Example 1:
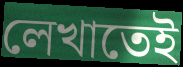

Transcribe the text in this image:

লেখাতেই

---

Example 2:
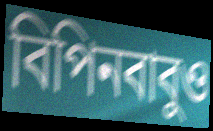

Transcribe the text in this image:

বিপিনবাবুও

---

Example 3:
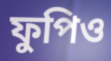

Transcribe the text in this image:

ফুপিও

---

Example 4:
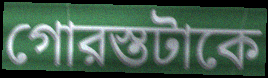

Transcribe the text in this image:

গোরস্তটাকে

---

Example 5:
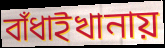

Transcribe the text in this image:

বাঁধাইখানায়